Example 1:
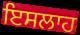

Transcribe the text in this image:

ਇਸਲਾਹ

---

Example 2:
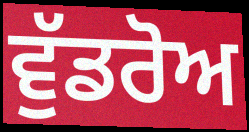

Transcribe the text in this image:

ਵੁੱਡਰੋਅ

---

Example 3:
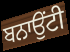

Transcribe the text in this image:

ਬਨਾਉਂਟੀ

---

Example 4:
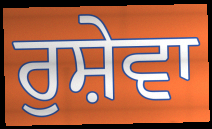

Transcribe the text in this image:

ਰੁਸ਼ੇਵਾ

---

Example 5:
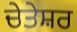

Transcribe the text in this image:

ਚੇਤੇਸ਼ਰ